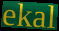
ekal